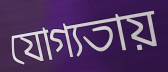
যোগ্যতায়